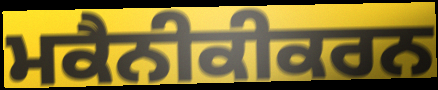
ਮਕੈਨੀਕੀਕਰਨ